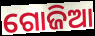
ଗୋଜିଆ